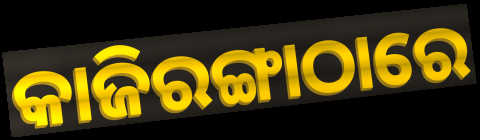
କାଜିରଙ୍ଗାଠାରେ